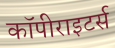
कॉपीराइटर्स